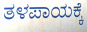
ತಳಪಾಯಕ್ಕೆ